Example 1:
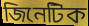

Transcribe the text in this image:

জিনেটিক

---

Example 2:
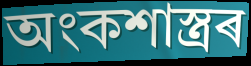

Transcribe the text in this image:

অংকশাস্ত্ৰৰ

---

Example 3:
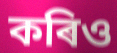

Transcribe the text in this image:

কৰিও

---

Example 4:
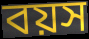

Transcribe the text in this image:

বয়স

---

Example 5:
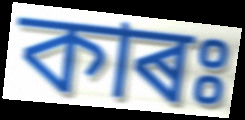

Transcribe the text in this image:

কাৰঃ